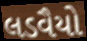
લડવૈયો